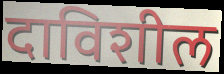
दाविशील